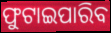
ଫୁଟାଇପାରିବ